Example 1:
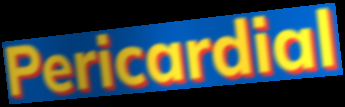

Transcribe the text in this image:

Pericardial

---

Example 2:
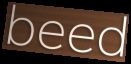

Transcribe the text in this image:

beed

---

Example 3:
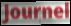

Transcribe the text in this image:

Journel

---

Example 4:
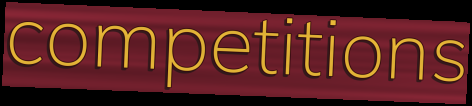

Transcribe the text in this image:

competitions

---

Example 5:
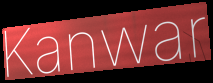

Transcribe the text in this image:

Kanwar